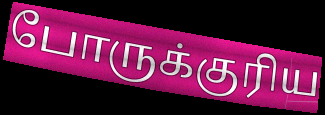
போருக்குரிய